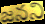
జనని